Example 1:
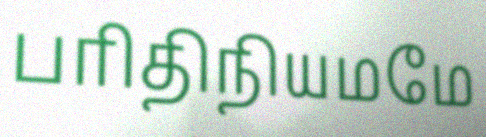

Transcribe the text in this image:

பரிதிநியமமே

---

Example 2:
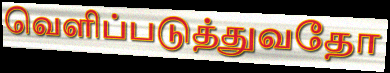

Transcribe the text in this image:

வெளிப்படுத்துவதோ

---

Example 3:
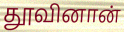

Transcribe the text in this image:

தூவினான்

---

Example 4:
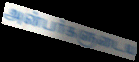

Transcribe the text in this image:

அன்பர்களுடைய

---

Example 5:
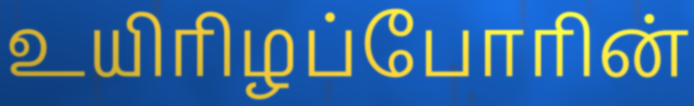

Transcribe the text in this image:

உயிரிழப்போரின்